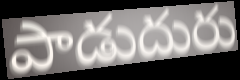
పాడుదురు